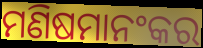
ମଣିଷମାନଂକର